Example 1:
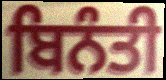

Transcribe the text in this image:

ਬਿਨੰਤੀ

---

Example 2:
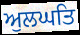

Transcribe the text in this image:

ਅੁਲਘਤਿ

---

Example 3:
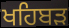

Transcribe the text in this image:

ਖਹਿਬੜ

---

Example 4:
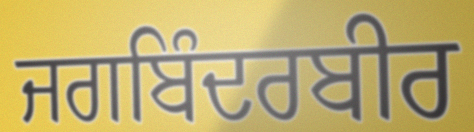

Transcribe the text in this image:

ਜਗਬਿੰਦਰਬੀਰ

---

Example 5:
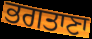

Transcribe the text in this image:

ਭਗਤਾਣਾ